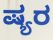
ಷ್ಯರ